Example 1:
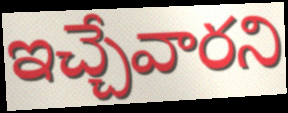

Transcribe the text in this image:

ఇచ్చేవారని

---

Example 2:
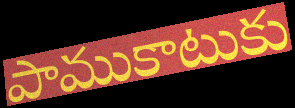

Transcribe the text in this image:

పాముకాటుకు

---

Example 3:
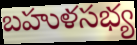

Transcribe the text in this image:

బహుళసభ్య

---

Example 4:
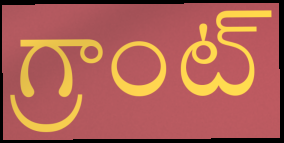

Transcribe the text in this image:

గ్రాంట్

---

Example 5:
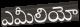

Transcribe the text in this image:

ఎమీలియో